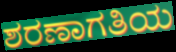
ಶರಣಾಗತಿಯ